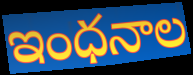
ఇంధనాల